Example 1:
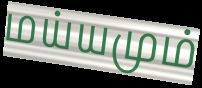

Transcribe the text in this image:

மய்யமும்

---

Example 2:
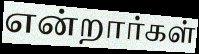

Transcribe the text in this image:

என்றார்கள்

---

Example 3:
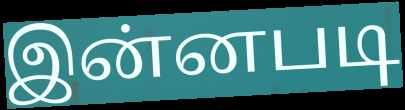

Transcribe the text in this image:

இன்னபடி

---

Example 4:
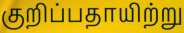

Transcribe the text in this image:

குறிப்பதாயிற்று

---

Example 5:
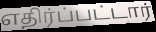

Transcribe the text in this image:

எதிர்ப்பட்டார்